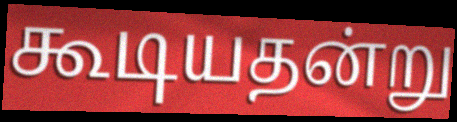
கூடியதன்று